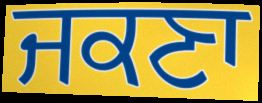
ਜਕਣਾ